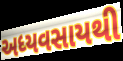
અધ્યવસાયથી